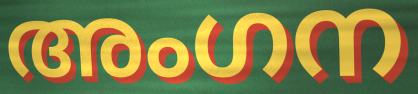
അംഗന